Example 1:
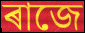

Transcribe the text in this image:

ৰাজে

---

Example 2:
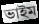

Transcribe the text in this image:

ভাইম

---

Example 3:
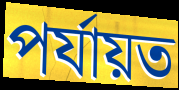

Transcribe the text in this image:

পৰ্যায়ত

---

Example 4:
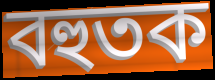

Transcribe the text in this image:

বহুতক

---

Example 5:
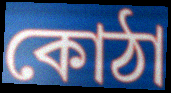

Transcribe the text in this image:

কোঠা